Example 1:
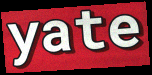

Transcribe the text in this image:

yate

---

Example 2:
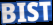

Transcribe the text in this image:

BIST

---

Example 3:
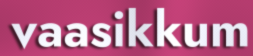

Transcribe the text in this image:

vaasikkum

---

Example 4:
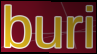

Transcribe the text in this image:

buri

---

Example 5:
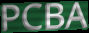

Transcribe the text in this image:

PCBA